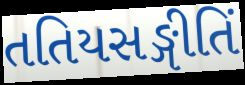
તતિયસઙ્ગીતિં